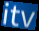
itv